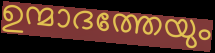
ഉന്മാദത്തേയും